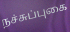
நச்சுப்புகை